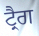
ਟ੍ਰੈਗ